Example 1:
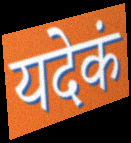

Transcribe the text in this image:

यदेकं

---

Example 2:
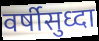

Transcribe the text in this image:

वर्षीसुध्दा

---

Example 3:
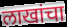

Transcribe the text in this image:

लाखांचा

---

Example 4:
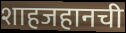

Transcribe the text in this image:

शाहजहानची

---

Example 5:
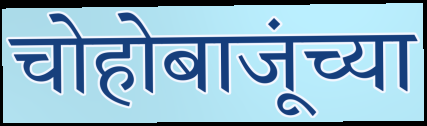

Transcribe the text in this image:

चोहोबाजूंच्या